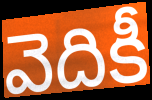
వెదికీ